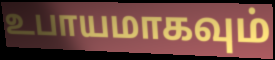
உபாயமாகவும்